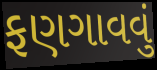
ફણગાવવું